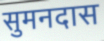
सुमनदास